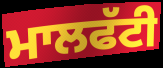
ਮਾਲਫੱਟੀ